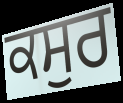
ਕਸੁਰ